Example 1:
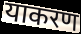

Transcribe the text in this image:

याकरण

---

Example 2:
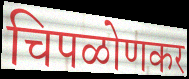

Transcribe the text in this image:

चिपळोणकर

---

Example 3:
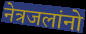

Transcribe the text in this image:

नेत्रजलांनो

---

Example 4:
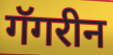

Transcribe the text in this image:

गॅगरीन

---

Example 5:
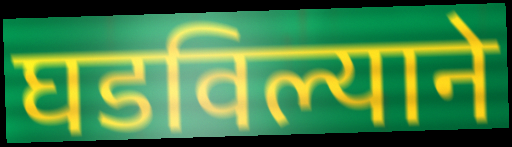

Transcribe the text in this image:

घडविल्याने